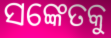
ସଙ୍କେତକୁ